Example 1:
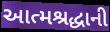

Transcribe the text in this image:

આત્મશ્રદ્ધાની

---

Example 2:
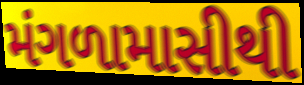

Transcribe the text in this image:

મંગળામાસીથી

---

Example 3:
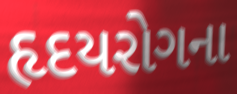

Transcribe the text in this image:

હૃદયરોગના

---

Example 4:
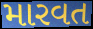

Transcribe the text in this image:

મારવત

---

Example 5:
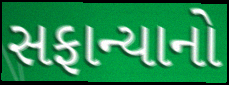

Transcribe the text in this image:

સફાન્યાનો